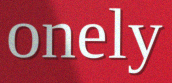
onely